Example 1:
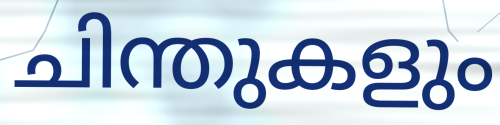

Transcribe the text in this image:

ചിന്തുകളും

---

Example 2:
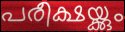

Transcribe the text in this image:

പരീക്ഷയ്ക്കും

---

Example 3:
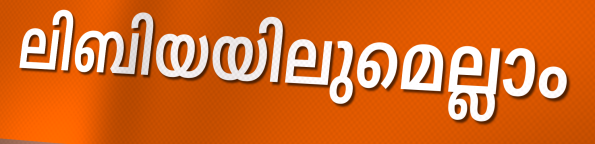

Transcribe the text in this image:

ലിബിയയിലുമെല്ലാം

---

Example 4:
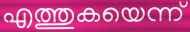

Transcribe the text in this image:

എത്തുകയെന്ന്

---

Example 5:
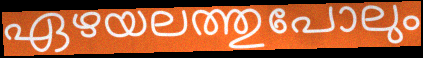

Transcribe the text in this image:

ഏഴയലത്തുപോലും